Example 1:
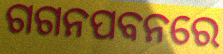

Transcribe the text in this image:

ଗଗନପବନରେ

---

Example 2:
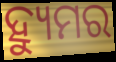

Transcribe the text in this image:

ହ୍ୟୁମର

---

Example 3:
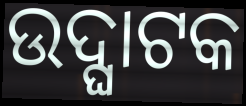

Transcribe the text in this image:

ଉଦ୍ଘାଟକ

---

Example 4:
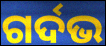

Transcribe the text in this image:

ଗର୍ଦଭ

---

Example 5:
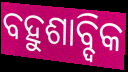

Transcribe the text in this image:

ବହୁଶାବ୍ଦିକ